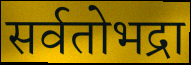
सर्वतोभद्रा